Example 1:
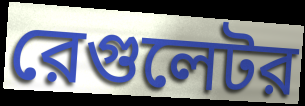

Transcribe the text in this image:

রেগুলেটর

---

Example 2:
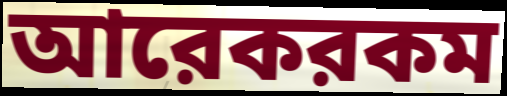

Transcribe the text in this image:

আরেকরকম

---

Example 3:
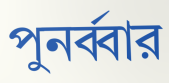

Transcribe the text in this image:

পুনর্ব্বার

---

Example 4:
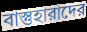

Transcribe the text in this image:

বাস্তুহারাদের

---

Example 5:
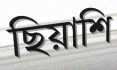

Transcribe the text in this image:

ছিয়াশি